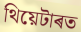
থিয়েটাৰত